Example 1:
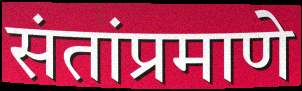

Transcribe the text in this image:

संतांप्रमाणे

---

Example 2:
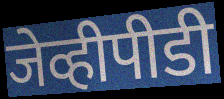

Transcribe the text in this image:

जेव्हीपीडी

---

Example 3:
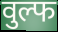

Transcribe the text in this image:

वुल्फ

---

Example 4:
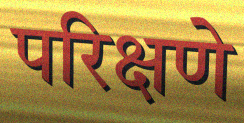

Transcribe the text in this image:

परिक्षणे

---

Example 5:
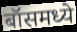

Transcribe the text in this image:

बॉसमध्ये